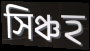
সিঞ্চহ